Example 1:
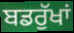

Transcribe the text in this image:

ਬਡਰੁੱਖਾਂ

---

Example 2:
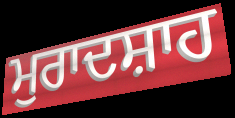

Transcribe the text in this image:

ਮੁਰਾਦਸ਼ਾਹ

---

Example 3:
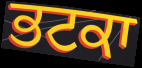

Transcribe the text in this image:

ਭਟਕਾ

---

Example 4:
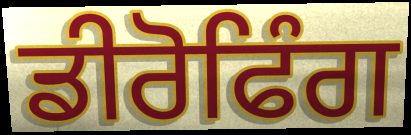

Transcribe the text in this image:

ਡੀਰੋਫਿੰਗ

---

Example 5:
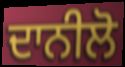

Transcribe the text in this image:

ਦਾਨੀਲੋ